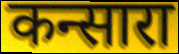
कन्सारा